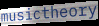
musictheory